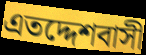
এতদ্দেশবাসী